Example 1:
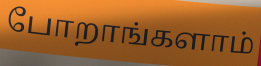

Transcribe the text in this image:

போறாங்களாம்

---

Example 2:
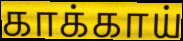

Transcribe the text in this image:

காக்காய்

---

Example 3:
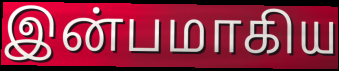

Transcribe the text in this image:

இன்பமாகிய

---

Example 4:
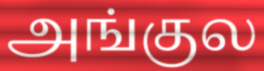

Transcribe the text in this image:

அங்குல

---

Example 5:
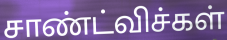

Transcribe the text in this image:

சாண்ட்விச்கள்